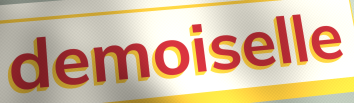
demoiselle